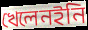
খেলেনইনি